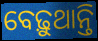
ବେଢ଼ୁଥାନ୍ତି